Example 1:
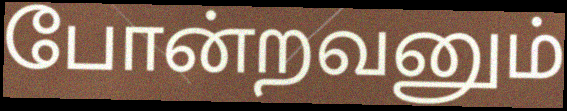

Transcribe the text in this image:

போன்றவனும்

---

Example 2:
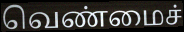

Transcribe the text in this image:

வெண்மைச்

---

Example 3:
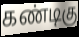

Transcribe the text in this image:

கண்டிகு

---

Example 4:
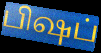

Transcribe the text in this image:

பிஷப்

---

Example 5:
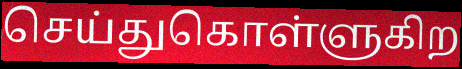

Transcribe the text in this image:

செய்துகொள்ளுகிற